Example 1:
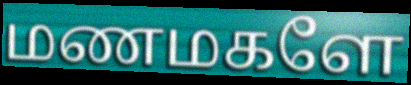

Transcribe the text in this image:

மணமகளே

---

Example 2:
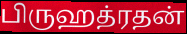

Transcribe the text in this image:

பிருஹத்ரதன்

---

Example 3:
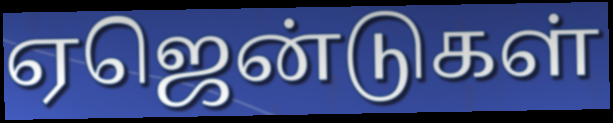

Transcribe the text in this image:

ஏஜென்டுகள்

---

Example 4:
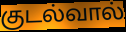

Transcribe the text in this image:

குடல்வால்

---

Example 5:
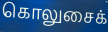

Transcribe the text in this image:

கொலுசைக்